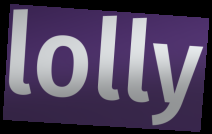
lolly